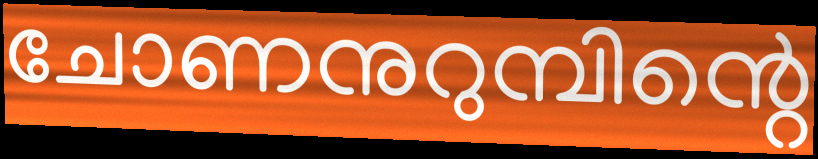
ചോണനുറുമ്പിന്റെ